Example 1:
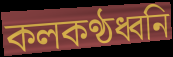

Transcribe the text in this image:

কলকণ্ঠধ্বনি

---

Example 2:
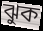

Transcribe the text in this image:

ঝুক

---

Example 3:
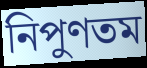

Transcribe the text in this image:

নিপুণতম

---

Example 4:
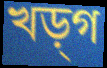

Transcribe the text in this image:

খড়্‌গ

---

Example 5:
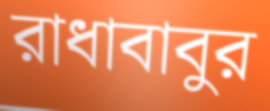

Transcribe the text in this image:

রাধাবাবুর